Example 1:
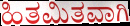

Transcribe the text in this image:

ಹಿತಮಿತವಾಗಿ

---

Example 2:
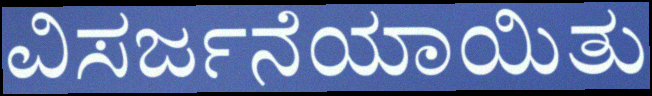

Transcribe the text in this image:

ವಿಸರ್ಜನೆಯಾಯಿತು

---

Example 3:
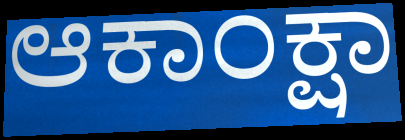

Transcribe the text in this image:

ಆಕಾಂಕ್ಷಾ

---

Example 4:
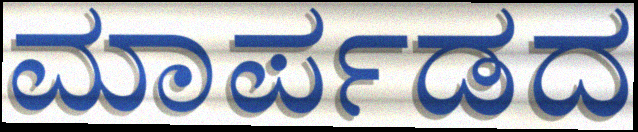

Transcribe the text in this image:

ಮಾರ್ಪಡದ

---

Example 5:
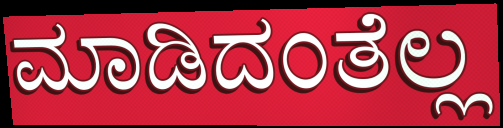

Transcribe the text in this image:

ಮಾಡಿದಂತೆಲ್ಲ